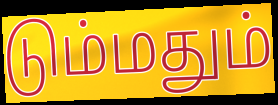
டும்மதும்